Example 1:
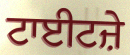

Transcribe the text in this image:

ਟਾਈਟਜ਼ੇ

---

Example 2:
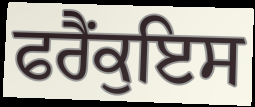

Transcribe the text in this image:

ਫਰੈਂਕੁਇਸ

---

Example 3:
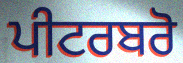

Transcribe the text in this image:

ਪੀਟਰਬਰੋ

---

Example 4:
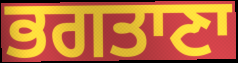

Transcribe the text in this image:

ਭਗਤਾਣਾ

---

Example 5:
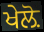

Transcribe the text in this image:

ਖੇਲ਼ੋ